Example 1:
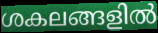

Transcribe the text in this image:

ശകലങ്ങളിൽ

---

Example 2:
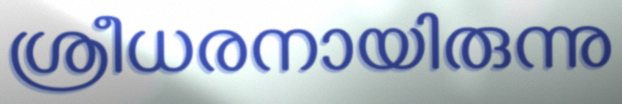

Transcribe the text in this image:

ശ്രീധരനായിരുന്നു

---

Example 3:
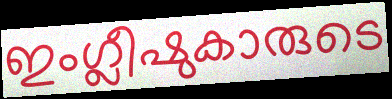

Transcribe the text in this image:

ഇംഗ്ലീഷുകാരുടെ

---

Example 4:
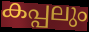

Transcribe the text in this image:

കപ്പലും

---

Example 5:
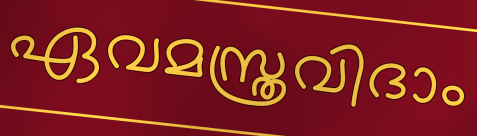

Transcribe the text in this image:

ഏവമസ്ത്രവിദാം